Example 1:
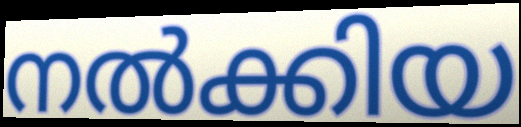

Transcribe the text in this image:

നൽക്കിയ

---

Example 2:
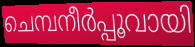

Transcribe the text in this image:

ചെമ്പനീർപ്പൂവായി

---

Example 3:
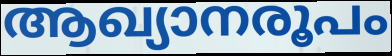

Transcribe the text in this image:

ആഖ്യാനരൂപം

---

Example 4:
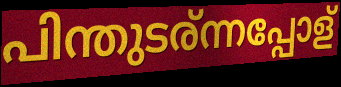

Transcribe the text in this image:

പിന്തുടര്ന്നപ്പോള്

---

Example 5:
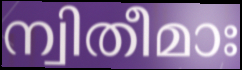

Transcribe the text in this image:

ന്വിതീമാഃ